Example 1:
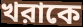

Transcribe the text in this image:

খরাকে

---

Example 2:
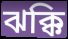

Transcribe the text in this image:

ঝক্কি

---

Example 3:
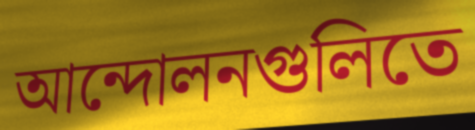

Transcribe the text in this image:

আন্দোলনগুলিতে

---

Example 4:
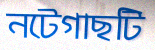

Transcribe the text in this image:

নটেগাছটি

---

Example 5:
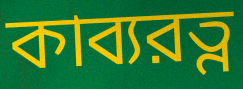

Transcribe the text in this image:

কাব্যরত্ন